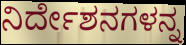
ನಿರ್ದೇಶನಗಳನ್ನ